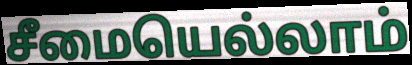
சீமையெல்லாம்